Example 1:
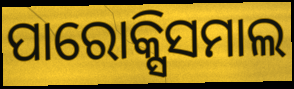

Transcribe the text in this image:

ପାରୋକ୍ସିସମାଲ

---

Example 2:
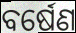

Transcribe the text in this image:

ବର୍ଷେଣ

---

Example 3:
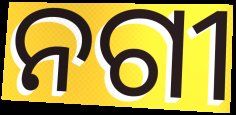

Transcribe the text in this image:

ନଗୀ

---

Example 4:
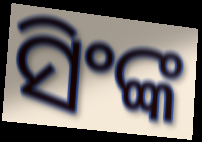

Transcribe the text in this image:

ସିଂଙ୍କ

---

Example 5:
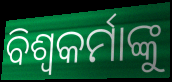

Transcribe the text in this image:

ବିଶ୍ଵକର୍ମାଙ୍କୁ